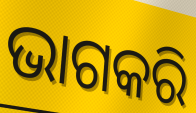
ଭାଗକରି